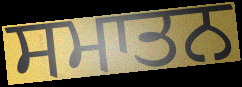
ਸਮਾਤਨ